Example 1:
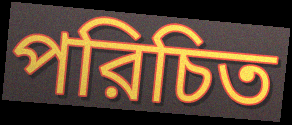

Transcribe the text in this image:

পরিচিত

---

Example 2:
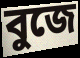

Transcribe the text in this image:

বুজে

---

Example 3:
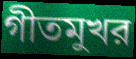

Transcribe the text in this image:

গীতমুখর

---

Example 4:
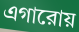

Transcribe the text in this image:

এগারোয়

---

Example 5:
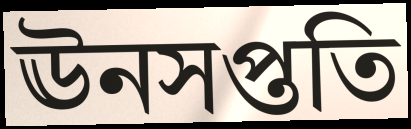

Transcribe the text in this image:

ঊনসপ্ততি